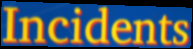
Incidents